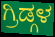
ಗ್ರಿಡ್ಗಳ